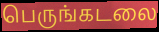
பெருங்கடலை